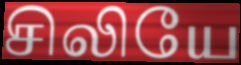
சிலியே